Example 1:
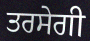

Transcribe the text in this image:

ਤਰਸੇਗੀ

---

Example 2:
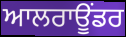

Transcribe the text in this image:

ਆਲਰਾਊਂਡਰ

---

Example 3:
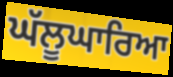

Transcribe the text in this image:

ਘੱਲੂਘਾਰਿਆ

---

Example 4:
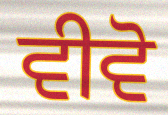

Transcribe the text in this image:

ਵੀਵੋ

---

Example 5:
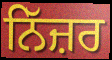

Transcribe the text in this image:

ਨਿੱਜ਼ਰ